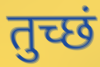
तुच्छं